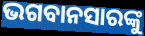
ଭଗବାନସାରଙ୍କୁ